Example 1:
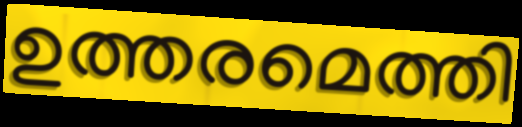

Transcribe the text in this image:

ഉത്തരമെത്തി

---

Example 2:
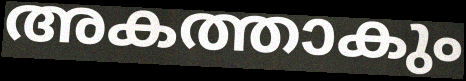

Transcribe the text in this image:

അകത്താകും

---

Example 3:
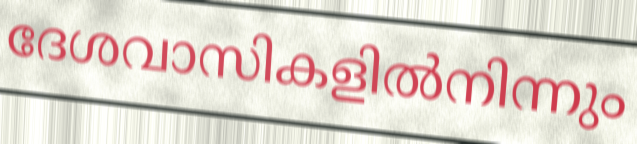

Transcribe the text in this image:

ദേശവാസികളിൽനിന്നും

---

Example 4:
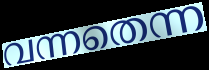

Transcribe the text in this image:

വന്നതെന്ന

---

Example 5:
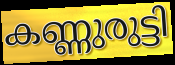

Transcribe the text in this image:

കണ്ണുരുട്ടി